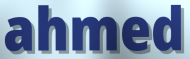
ahmed